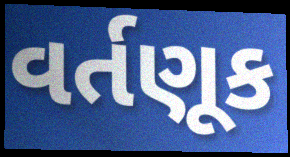
વર્તણૂક